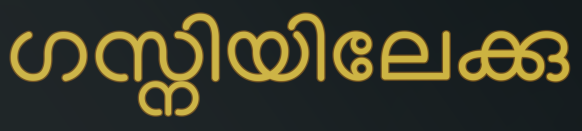
ഗസ്നിയിലേക്കു